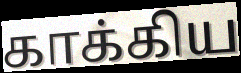
காக்கிய